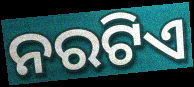
ନରଟିଏ